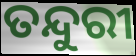
ତନ୍ଦୁରୀ